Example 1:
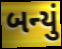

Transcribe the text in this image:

બન્યું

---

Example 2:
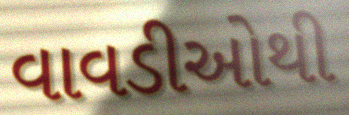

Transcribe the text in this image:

વાવડીઓથી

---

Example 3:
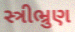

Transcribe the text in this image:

સ્ત્રીભ્રુણ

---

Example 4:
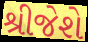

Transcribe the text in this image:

શ્રીજેશે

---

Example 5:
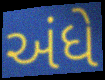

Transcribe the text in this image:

અંધે